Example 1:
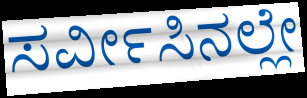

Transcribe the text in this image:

ಸರ್ವೀಸಿನಲ್ಲೇ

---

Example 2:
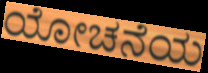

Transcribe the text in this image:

ಯೋಚನೆಯ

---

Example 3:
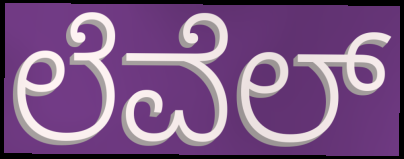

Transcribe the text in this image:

ಲೆವೆಲ್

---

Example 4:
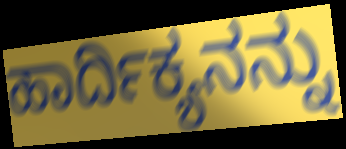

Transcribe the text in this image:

ಹಾರ್ದಿಕ್ಯನನ್ನು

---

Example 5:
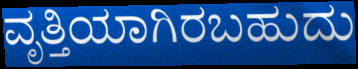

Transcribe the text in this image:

ವೃತ್ತಿಯಾಗಿರಬಹುದು